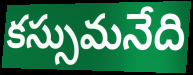
కస్సుమనేది